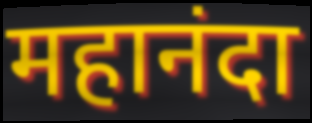
महानंदा